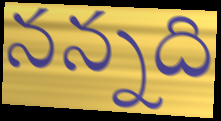
నన్నది